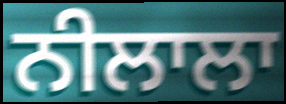
ਨੀਲਾਲਾ